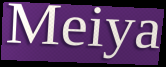
Meiya